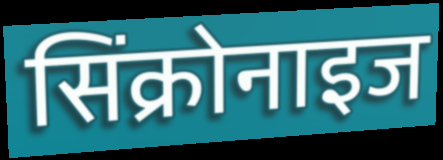
सिंक्रोनाइज